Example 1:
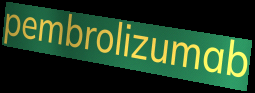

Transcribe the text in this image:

pembrolizumab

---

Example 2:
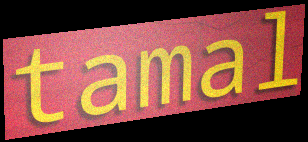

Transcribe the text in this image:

tamal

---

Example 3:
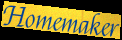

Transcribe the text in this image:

Homemaker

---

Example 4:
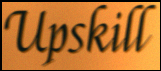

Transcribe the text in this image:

Upskill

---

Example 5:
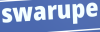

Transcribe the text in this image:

swarupe